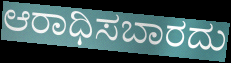
ಆರಾಧಿಸಬಾರದು